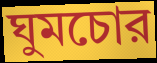
ঘুমচোর